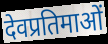
देवप्रतिमाओं